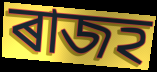
ৰাজহ